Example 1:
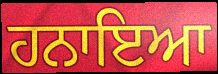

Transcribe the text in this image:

ਹਨਾਇਆ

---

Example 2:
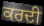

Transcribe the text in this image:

ਕਰਦੀ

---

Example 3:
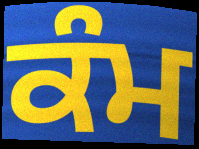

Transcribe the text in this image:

ਕੰਮ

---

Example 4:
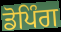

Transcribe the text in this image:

ਡੋਪਿੰਗ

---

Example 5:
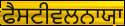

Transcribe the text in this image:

ਫੈਸਟੀਵਲਨਾਯਾ